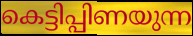
കെട്ടിപ്പിണയുന്ന